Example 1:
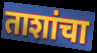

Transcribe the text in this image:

ताशांचा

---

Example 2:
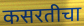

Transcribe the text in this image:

कसरतीचा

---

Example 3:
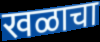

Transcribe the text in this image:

खळाचा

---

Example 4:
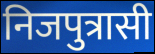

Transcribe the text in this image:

निजपुत्रासी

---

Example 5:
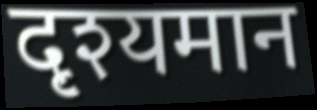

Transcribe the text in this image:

दृश्यमान